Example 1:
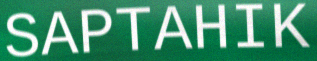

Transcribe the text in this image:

SAPTAHIK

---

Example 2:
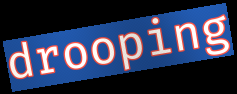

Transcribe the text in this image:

drooping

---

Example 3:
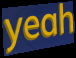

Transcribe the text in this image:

yeah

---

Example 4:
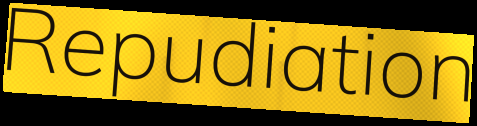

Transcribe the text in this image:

Repudiation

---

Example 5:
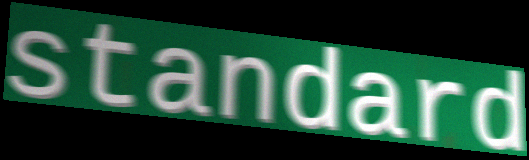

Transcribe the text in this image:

standard